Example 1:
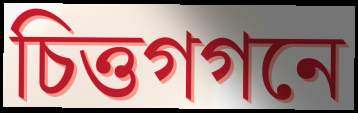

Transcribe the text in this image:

চিত্তগগনে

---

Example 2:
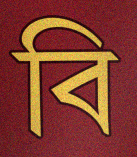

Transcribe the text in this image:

বি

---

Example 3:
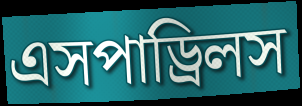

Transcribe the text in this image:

এসপাড্রিলস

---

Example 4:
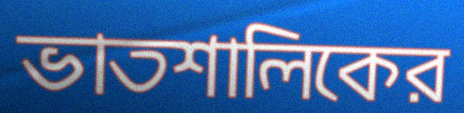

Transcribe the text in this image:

ভাতশালিকের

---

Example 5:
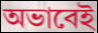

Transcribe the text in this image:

অভাবেই